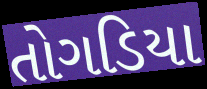
તોગડિયા